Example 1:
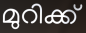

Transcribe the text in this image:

മുറിക്ക്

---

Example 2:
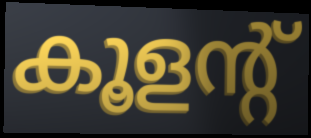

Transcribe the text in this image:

കൂളന്റ്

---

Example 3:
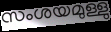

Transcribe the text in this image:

സംശയമുള്ളു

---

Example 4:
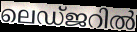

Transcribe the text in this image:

ലെഡ്ജറിൽ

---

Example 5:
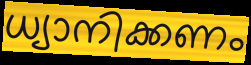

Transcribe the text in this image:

ധ്യാനിക്കണം